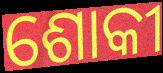
ଶୋକୀ